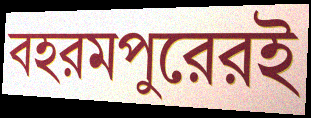
বহরমপুরেরই